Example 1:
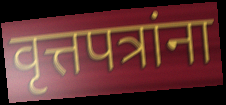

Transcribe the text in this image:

वृत्तपत्रांना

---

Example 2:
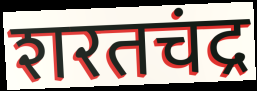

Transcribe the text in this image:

शरतचंद्र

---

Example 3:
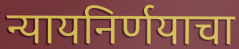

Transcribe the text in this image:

न्यायनिर्णयाचा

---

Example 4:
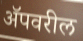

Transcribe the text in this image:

ॲपवरील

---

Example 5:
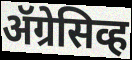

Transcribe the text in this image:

ॲग्रेसिव्ह